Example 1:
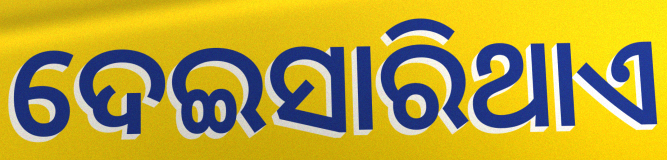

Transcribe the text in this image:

ଦେଇସାରିଥାଏ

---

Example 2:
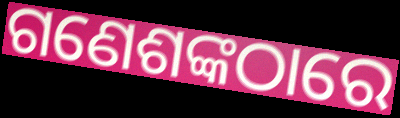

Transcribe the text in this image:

ଗଣେଶଙ୍କଠାରେ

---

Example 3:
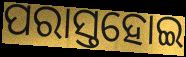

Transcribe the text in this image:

ପରାସ୍ତହୋଇ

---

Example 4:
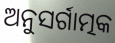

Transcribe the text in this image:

ଅନୁସର୍ଗାତ୍ମକ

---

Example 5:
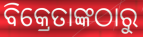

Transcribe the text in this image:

ବିକ୍ରେତାଙ୍କଠାରୁ